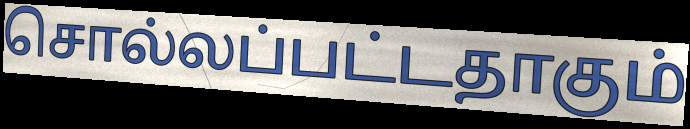
சொல்லப்பட்டதாகும்